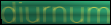
diurnum